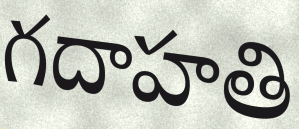
గదాహతి